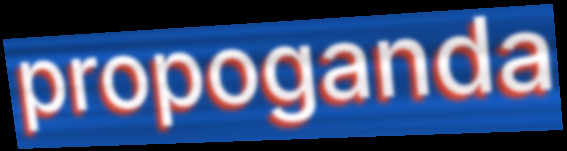
propoganda